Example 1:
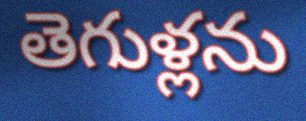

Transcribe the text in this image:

తెగుళ్లను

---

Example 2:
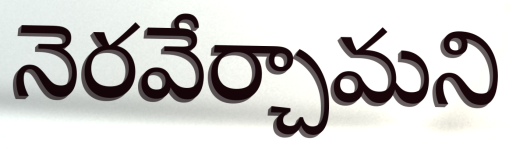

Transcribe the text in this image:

నెరవేర్చామని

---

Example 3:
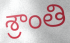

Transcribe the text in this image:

శ్రాంతి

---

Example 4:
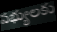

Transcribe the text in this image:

సభ్యులకు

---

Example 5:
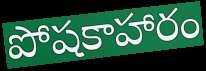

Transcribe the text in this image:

పోషకాహారం